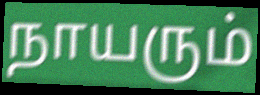
நாயரும்